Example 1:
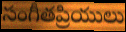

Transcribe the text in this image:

సంగీతప్రియులు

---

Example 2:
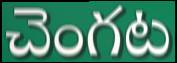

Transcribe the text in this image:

చెంగట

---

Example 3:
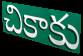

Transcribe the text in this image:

చికాకు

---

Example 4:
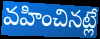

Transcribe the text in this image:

వహించినట్లే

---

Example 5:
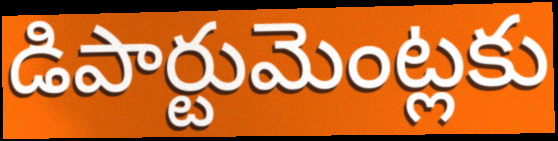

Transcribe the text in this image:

డిపార్టుమెంట్లకు